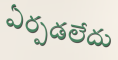
ఏర్పడలేదు